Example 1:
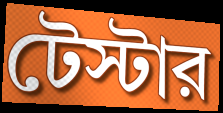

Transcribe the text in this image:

টেস্টার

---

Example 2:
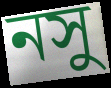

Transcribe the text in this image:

নসু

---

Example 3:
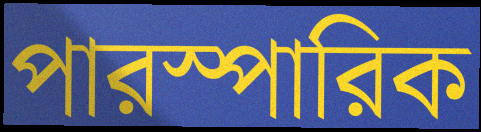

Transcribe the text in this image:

পারস্পারিক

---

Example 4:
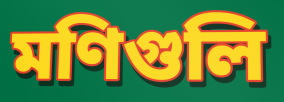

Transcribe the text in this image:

মণিগুলি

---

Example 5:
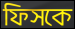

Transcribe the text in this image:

ফিসকে